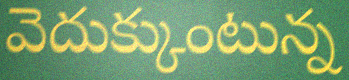
వెదుక్కుంటున్న